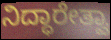
ನಿದ್ಧಾರೇತ್ವಾ